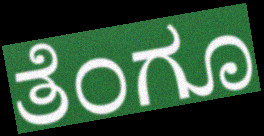
ತೆಂಗೂ